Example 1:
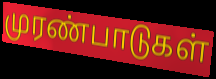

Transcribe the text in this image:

முரண்பாடுகள்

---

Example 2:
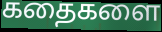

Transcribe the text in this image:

கதைகளை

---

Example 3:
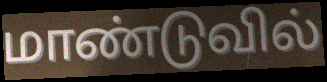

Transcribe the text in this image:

மாண்டுவில்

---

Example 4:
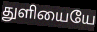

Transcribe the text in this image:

துளியையே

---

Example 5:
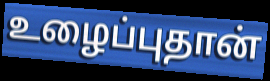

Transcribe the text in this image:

உழைப்புதான்